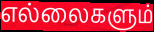
எல்லைகளும்